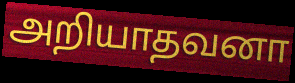
அறியாதவனா